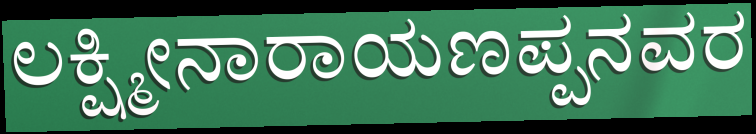
ಲಕ್ಷ್ಮೀನಾರಾಯಣಪ್ಪನವರ